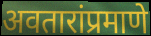
अवतारांप्रमाणे